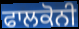
ਫਾਲਕੋਨੀ